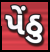
પેંઠુ